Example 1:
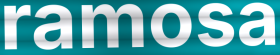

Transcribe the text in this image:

ramosa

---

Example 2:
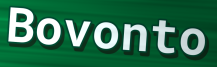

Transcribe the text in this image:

Bovonto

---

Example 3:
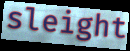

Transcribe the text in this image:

sleight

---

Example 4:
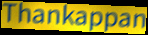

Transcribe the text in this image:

Thankappan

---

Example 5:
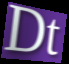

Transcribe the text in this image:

Dt